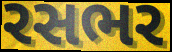
રસભર